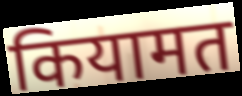
कियामत